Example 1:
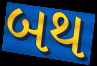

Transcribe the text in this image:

બથ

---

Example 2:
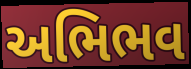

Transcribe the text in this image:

અભિભવ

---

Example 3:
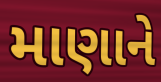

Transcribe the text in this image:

માણાને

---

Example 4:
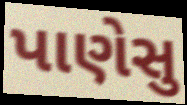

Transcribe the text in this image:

પાણેસુ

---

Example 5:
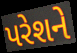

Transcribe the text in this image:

પરેશને